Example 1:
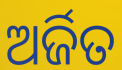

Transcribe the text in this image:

ଅର୍ଜିତ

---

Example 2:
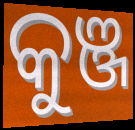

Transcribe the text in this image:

କୁଞ୍ଜ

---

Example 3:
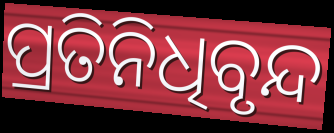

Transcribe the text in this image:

ପ୍ରତିନିଧିବୃନ୍ଦ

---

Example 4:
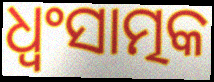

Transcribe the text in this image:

ଧ୍ଵଂସାତ୍ମକ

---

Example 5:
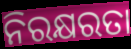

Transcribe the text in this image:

ନିରକ୍ଷରତା